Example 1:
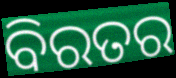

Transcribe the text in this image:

ବିରତର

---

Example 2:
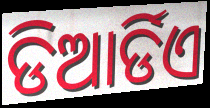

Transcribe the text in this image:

ଡିଆର୍ଡିଏ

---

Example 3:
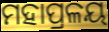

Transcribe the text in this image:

ମହାପ୍ରଳୟ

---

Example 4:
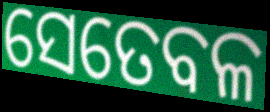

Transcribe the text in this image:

ସେତେବଳ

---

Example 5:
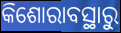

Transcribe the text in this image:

କିଶୋରାବସ୍ଥାରୁ